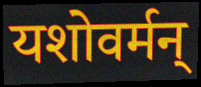
यशोवर्मन्